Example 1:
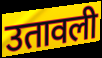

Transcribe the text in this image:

उतावली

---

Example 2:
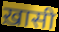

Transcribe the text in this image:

ख़ासी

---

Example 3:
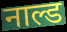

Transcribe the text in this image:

नाल्ड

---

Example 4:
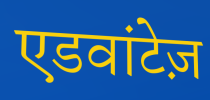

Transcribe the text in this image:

एडवांटेज़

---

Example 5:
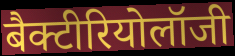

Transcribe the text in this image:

बैक्टीरियोलॉजी